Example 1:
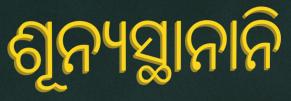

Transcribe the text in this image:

ଶୂନ୍ୟସ୍ଥାନାନି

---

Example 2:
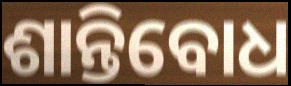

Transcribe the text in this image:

ଶାନ୍ତିବୋଧ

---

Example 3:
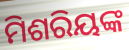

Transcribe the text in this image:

ମିଶରିୟଙ୍କ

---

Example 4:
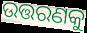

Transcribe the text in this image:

ଉତ୍ତରଣକୁ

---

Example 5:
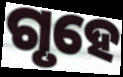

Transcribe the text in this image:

ଗୃହେ